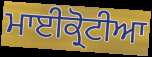
ਮਾਈਕ੍ਰੋਟੀਆ